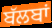
ਬੱਲਬਾਂ